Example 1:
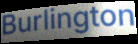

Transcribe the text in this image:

Burlington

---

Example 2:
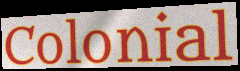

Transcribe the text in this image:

Colonial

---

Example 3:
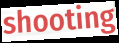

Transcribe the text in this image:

shooting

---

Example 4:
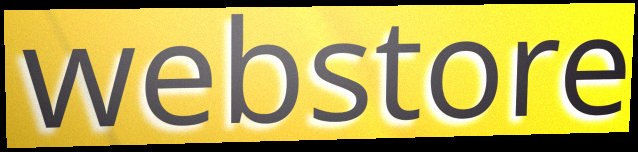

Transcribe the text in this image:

webstore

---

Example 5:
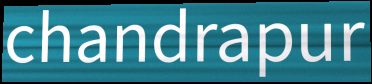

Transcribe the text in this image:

chandrapur